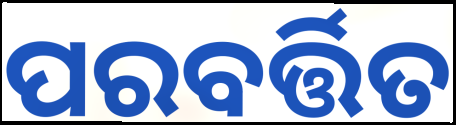
ପରବର୍ତ୍ତିତ